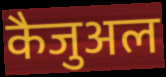
कैजुअल